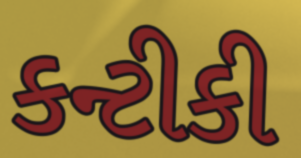
કન્ટીકી